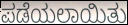
ಪಡೆಯಲಾಯಿತು